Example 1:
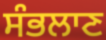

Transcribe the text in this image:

ਸੰਭਲਾਣ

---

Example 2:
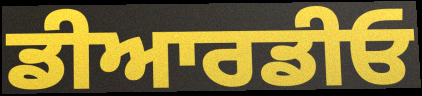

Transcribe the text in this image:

ਡੀਆਰਡੀਓ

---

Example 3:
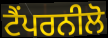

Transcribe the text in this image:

ਟੈਂਪਰਨੀਲੋ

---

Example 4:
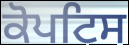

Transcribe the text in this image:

ਕੋਪਟਿਸ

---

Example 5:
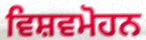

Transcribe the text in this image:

ਵਿਸ਼ਵਮੋਹਨ